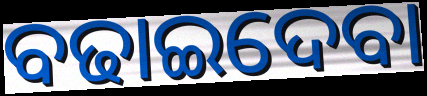
ବଢାଇଦେବା